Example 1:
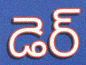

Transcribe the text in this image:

డెర్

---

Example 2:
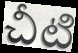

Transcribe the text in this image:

చీటి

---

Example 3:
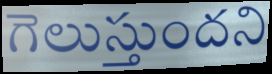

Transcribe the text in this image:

గెలుస్తుందని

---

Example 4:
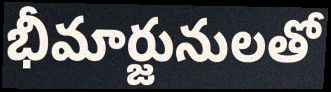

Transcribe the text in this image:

భీమార్జునులతో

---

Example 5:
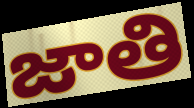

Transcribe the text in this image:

జాతి